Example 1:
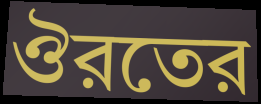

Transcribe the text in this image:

ঔরতের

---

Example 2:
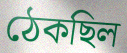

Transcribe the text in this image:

ঠেকছিল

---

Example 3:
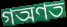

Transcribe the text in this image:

গঅণত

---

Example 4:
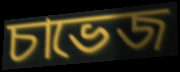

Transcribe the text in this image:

চাভেজ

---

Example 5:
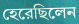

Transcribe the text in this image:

হেরেছিলেন